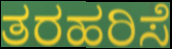
ತರಹರಿಸೆ